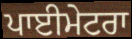
ਪਾਈਮੇਟਰਾ